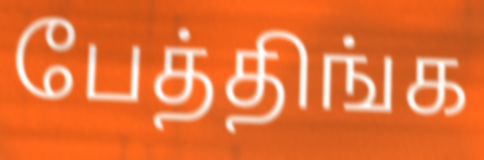
பேத்திங்க